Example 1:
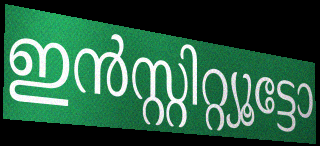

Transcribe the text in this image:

ഇൻസ്റ്റിറ്റ്യൂട്ടോ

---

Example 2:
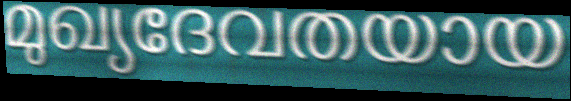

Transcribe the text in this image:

മുഖ്യദേവതയായ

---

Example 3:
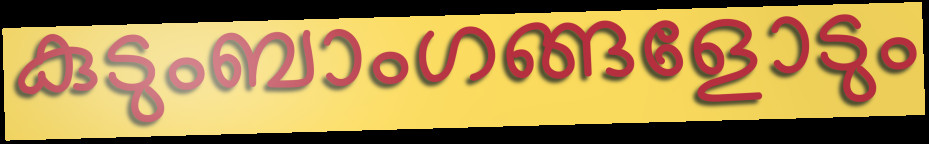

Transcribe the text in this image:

കുടുംബാംഗങ്ങളോടും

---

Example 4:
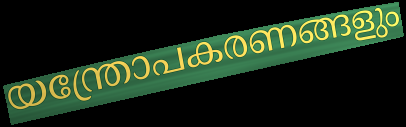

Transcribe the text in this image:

യന്ത്രോപകരണങ്ങളും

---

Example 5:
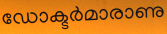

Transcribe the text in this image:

ഡോക്ടർമാരാണു